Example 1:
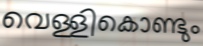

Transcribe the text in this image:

വെള്ളികൊണ്ടും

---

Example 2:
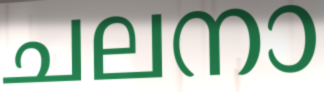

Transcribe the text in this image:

ചലനാ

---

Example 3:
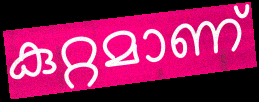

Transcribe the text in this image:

കുറ്റമാണ്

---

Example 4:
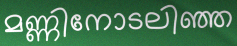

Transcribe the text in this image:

മണ്ണിനോടലിഞ്ഞ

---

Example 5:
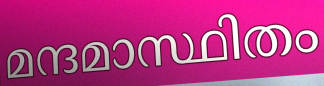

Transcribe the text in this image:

മന്ദമാസ്ഥിതം